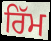
ਰਿੱਮ